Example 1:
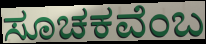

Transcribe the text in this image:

ಸೂಚಕವೆಂಬ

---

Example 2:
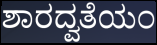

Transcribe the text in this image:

ಶಾರದ್ವತೆಯಂ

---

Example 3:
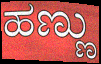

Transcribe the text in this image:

ಹಣ್ಣು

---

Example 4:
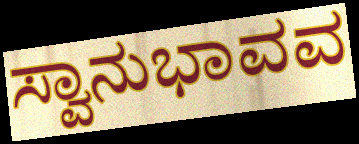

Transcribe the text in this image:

ಸ್ವಾನುಭಾವವ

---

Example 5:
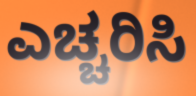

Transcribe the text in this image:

ಎಚ್ಚರಿಸಿ